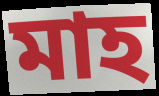
মাহ